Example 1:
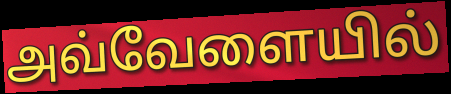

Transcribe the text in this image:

அவ்வேளையில்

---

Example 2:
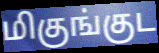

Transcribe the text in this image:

மிகுங்குட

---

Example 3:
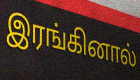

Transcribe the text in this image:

இரங்கினால்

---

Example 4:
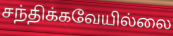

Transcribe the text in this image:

சந்திக்கவேயில்லை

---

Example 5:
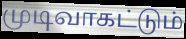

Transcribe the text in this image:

முடிவாகட்டும்